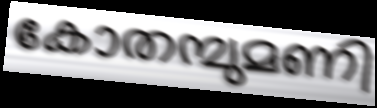
കോതമ്പുമണി